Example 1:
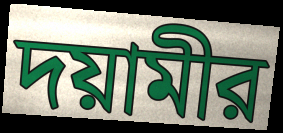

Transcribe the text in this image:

দয়ামীর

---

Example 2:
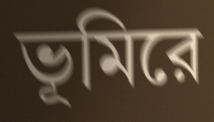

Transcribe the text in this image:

ভূমিরে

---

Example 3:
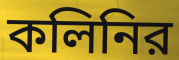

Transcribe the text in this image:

কলিনির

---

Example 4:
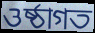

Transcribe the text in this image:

ওষ্ঠাগত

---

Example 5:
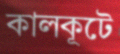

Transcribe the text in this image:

কালকূটে